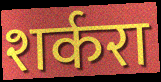
शर्करा